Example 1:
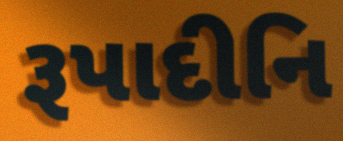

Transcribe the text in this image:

રૂપાદીનિ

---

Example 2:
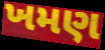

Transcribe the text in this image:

ખમણ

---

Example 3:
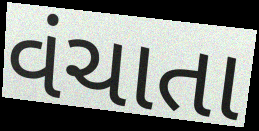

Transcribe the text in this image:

વંચાતા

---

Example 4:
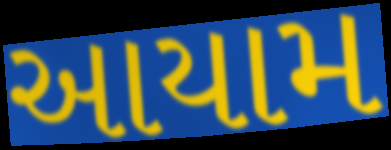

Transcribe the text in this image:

આયામ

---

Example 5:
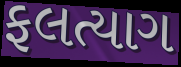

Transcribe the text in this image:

ફલત્યાગ